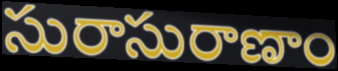
సురాసురాణాం